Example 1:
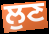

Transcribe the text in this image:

ਲੁਣ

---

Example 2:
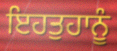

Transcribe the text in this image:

ਇਹਤੁਹਾਨੂੰ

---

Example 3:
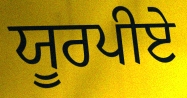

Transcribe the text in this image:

ਯੂਰਪੀਏ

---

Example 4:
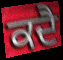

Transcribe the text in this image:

ਕਦੈ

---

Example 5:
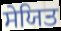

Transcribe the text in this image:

ਸੇਯਿਤ